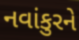
નવાંકુરને